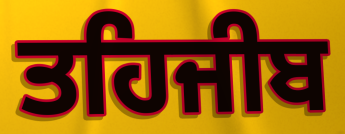
ਤਹਿਜੀਬ